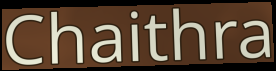
Chaithra